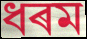
ধৰম